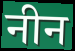
नीन